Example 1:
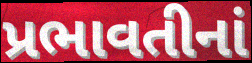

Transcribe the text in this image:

પ્રભાવતીનાં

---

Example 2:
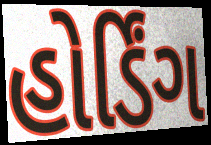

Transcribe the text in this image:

હોર્ડિંગ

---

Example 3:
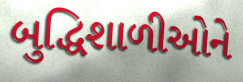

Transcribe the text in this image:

બુદ્ધિશાળીઓને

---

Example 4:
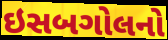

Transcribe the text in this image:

ઇસબગોલનો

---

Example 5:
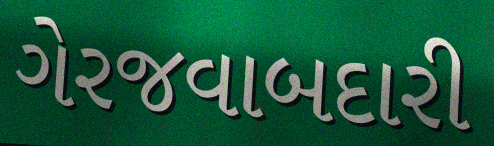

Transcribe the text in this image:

ગેરજવાબદારી